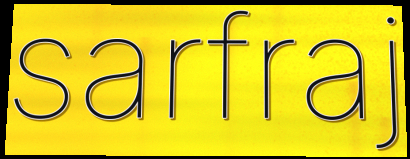
sarfraj